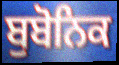
ਬੁਬੋਨਿਕ